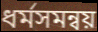
ধর্মসমন্বয়